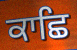
ਕਾਛਿ